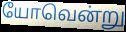
யோவென்று